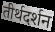
तीर्थदर्शन